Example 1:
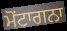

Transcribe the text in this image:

ਮੋਂਟਾਗਨਾ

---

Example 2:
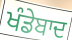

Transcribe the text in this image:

ਖੰਡੇਬਾਦ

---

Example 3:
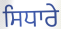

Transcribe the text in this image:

ਸਿਧਾਰੇ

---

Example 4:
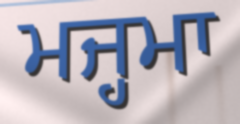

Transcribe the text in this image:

ਮਜ੍ਹਮਾ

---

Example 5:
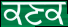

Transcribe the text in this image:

ਕਣਕ